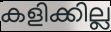
കളിക്കില്ല